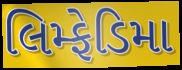
લિમ્ફેડિમા